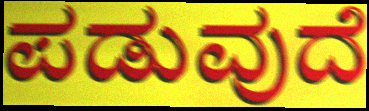
ಪಡುವುದೆ